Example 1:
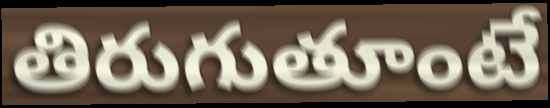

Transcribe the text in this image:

తిరుగుతూంటే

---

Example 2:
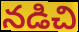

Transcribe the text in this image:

నడిచి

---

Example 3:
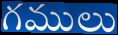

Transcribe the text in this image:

గములు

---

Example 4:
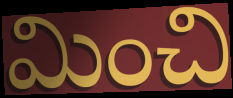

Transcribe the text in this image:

మించి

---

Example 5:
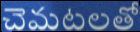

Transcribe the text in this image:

చెమటలతో